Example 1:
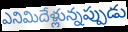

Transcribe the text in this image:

ఎనిమిదేళ్లున్నప్పుడు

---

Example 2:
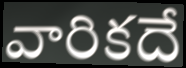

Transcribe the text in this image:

వారికదే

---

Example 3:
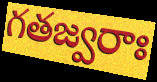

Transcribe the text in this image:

గతజ్వరాః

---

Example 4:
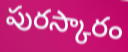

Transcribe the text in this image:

పురస్కారం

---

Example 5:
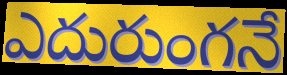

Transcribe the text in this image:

ఎదురుంగనే